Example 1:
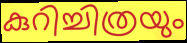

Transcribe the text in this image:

കുറിച്ചിത്രയും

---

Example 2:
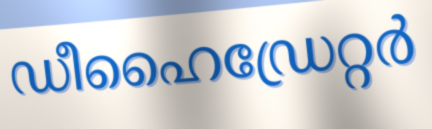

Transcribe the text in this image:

ഡീഹൈഡ്രേറ്റർ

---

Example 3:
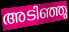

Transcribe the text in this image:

അടിഞ്ഞു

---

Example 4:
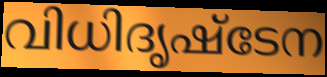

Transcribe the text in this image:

വിധിദൃഷ്ടേന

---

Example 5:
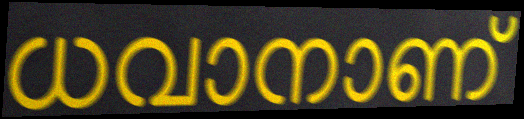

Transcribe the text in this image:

ധവാനാണ്